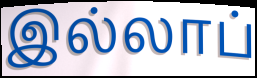
இல்லாப்